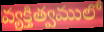
వ్యక్తిత్వములో